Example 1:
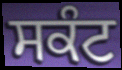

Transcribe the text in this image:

ਸਕੰਟ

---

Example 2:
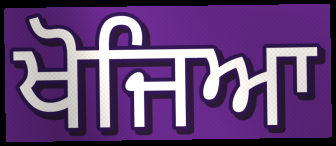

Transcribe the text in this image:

ਖੋਜਿਆ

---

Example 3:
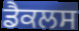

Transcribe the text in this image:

ਡੈਕਲਸ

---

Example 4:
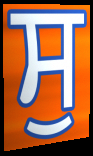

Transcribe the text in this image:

ਸੁ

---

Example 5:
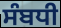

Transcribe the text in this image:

ਸੰਬਧੀ